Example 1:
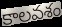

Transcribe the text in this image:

కాలవశం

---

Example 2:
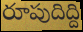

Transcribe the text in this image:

రూపుదిద్ది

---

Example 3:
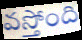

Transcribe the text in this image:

వస్తోంది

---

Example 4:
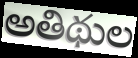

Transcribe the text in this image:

అతిథుల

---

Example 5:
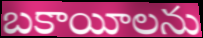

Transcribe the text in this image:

బకాయీలను